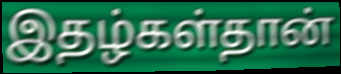
இதழ்கள்தான்